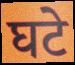
घटे